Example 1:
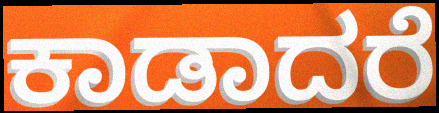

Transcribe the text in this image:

ಕಾಡಾದರೆ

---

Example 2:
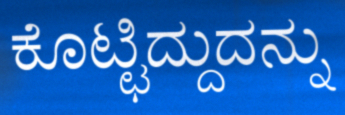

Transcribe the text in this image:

ಕೊಟ್ಟಿದ್ದುದನ್ನು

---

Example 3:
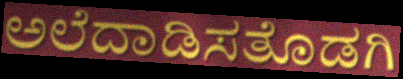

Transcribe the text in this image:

ಅಲೆದಾಡಿಸತೊಡಗಿ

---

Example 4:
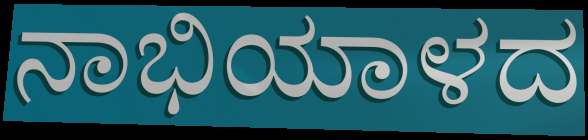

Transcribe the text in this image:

ನಾಭಿಯಾಳದ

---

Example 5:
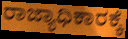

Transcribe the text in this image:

ರಾಜ್ಯಾಧಿಕಾರಕ್ಕೆ